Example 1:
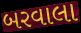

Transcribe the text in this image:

બરવાલા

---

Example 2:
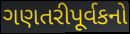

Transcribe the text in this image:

ગણતરીપૂર્વકનો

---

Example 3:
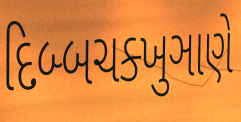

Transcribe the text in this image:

દિબ્બચક્ખુઞાણે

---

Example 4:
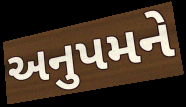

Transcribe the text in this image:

અનુપમને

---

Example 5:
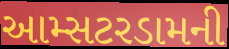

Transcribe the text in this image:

આમ્સટરડામની